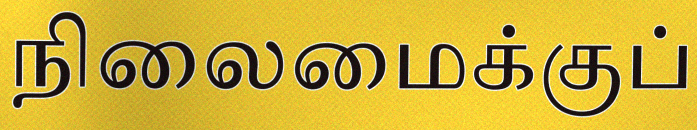
நிலைமைக்குப்